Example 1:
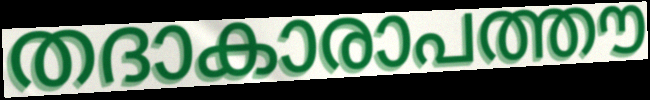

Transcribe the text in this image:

തദാകാരാപത്തൗ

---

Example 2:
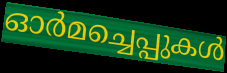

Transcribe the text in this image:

ഓർമച്ചെപ്പുകൾ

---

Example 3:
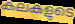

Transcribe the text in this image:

കലകളുടെ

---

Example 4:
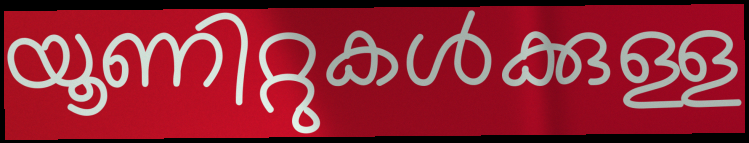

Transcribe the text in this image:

യൂണിറ്റുകൾക്കുള്ള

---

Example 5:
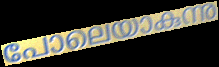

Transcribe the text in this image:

പോലെയാകുന്നു